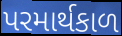
પરમાર્થકાળ